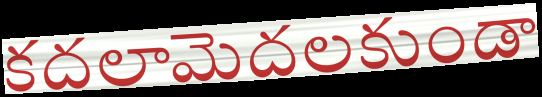
కదలామెదలకుండా